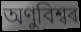
অণুবিশ্বৰ